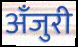
अँजुरी